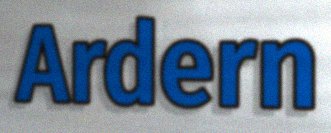
Ardern